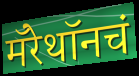
मॅरेथॉनचं